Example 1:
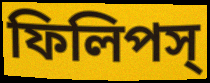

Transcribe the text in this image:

ফিলিপস্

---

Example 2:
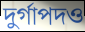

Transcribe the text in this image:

দুর্গাপদও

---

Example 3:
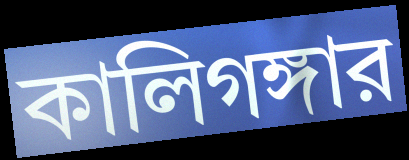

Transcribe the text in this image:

কালিগঙ্গার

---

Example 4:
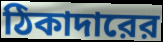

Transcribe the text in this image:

ঠিকাদারের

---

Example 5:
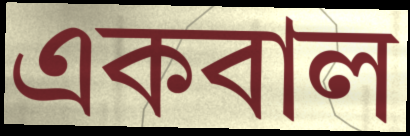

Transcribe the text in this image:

একবাল